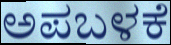
ಅಪಬಳಕೆ